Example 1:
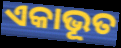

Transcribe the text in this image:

ଏକାଭୂତ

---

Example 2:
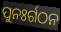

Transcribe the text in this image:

ପୁନଃର୍ଗଠନ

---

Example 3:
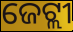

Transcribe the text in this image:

ଜେଟ୍ଲୀ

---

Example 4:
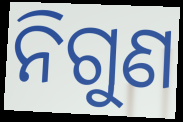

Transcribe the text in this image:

ନିଗୁଣ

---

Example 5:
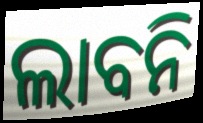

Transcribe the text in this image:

ଲାବନି